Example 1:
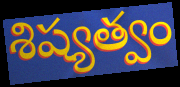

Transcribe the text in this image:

శిష్యత్వం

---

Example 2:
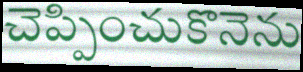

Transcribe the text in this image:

చెప్పించుకొనెను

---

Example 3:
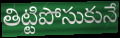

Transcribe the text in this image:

తిట్టిపోసుకునే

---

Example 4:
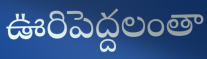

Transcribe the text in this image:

ఊరిపెద్దలంతా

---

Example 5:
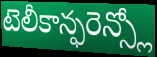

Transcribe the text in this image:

టెలీకాన్ఫరెన్స్లో